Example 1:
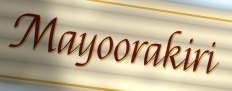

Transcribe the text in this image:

Mayoorakiri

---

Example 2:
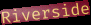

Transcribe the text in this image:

Riverside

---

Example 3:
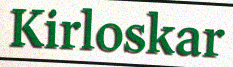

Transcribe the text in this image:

Kirloskar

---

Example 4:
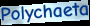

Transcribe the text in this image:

Polychaeta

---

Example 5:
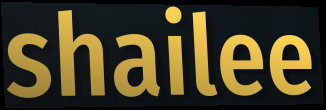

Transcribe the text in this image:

shailee